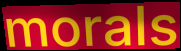
morals